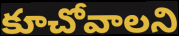
కూచోవాలని